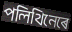
পলিথিনেৰে